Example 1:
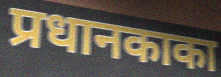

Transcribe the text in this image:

प्रधानकाका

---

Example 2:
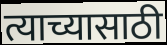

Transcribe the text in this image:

त्याच्यासाठी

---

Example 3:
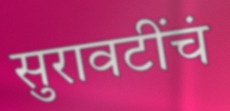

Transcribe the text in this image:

सुरावटींचं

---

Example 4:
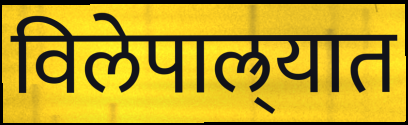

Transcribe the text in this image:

विलेपाल्र्यात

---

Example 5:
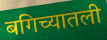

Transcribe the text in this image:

बगिच्यातली